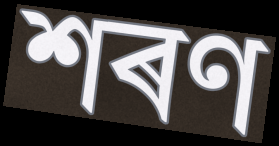
শৰণ